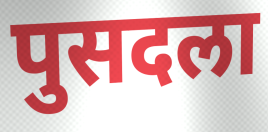
पुसदला